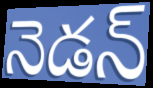
నెడన్